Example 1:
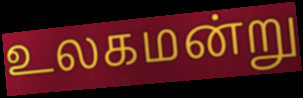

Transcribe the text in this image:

உலகமன்று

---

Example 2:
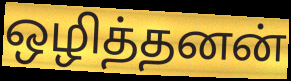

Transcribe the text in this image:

ஒழித்தனன்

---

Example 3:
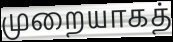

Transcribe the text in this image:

முறையாகத்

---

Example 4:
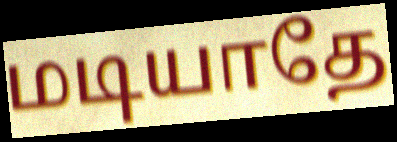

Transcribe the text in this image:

மடியாதே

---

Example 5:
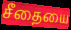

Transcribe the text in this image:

சீதையை